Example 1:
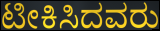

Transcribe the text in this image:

ಟೀಕಿಸಿದವರು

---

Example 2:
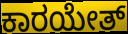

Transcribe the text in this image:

ಕಾರಯೇತ್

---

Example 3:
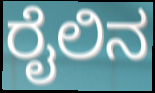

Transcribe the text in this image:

ರೈಲಿನ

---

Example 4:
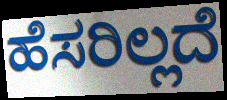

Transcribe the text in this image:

ಹೆಸರಿಲ್ಲದೆ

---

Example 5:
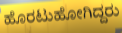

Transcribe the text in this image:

ಹೊರಟುಹೋಗಿದ್ದರು